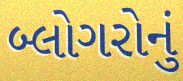
બ્લોગરોનું